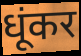
धूंकर